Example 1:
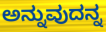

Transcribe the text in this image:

ಅನ್ನುವುದನ್ನ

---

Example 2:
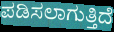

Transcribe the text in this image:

ಪಡಿಸಲಾಗುತ್ತಿದೆ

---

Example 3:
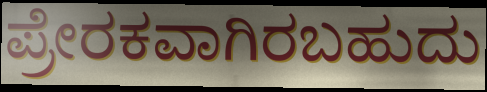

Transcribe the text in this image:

ಪ್ರೇರಕವಾಗಿರಬಹುದು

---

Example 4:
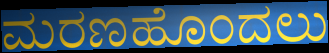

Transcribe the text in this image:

ಮರಣಹೊಂದಲು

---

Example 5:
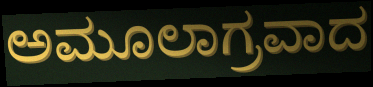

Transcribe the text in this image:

ಅಮೂಲಾಗ್ರವಾದ